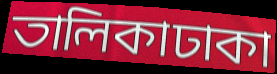
তালিকাঢাকা